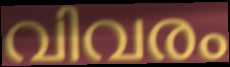
വിവരം